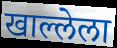
खाल्लेला